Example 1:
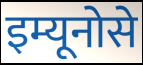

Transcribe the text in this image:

इम्यूनोसे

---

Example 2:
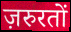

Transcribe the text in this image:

ज़रुरतों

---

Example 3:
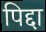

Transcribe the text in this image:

पिद्दा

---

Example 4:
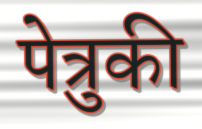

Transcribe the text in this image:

पेत्रुकी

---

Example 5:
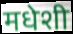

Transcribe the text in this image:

मधेशी